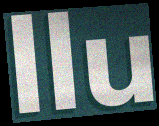
llu